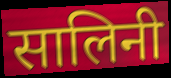
सालिनी